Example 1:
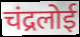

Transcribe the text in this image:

चंद्रलोई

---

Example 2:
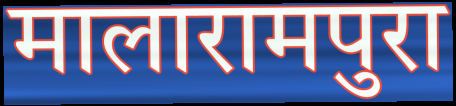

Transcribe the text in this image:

मालारामपुरा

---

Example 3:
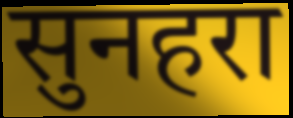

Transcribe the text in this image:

सुनहरा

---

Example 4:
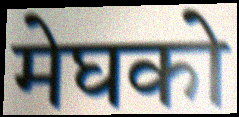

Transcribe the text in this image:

मेघको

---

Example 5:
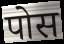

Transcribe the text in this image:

पोस